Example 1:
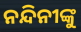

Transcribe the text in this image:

ନନ୍ଦିନୀଙ୍କୁ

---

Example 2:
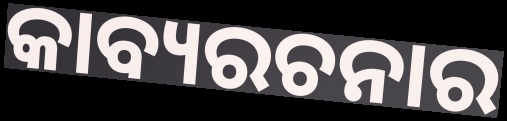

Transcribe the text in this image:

କାବ୍ୟରଚନାର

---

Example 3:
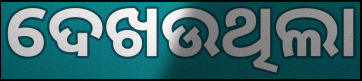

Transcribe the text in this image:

ଦେଖଉଥିଲା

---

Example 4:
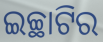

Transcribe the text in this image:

ଇଚ୍ଛାଟିର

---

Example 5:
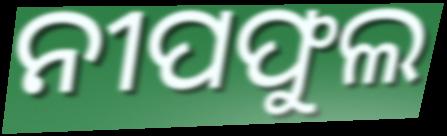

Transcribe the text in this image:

ନୀପଫୁଲ